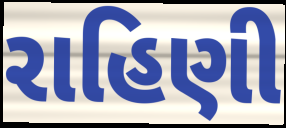
રાહિણી